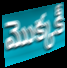
మొక్కకీ